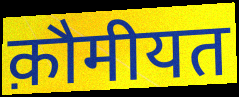
क़ौमीयत